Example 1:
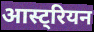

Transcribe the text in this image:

आस्ट्रियन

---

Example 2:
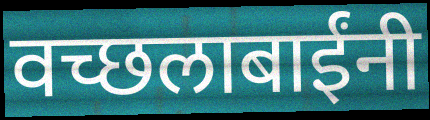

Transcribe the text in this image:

वच्छलाबाईंनी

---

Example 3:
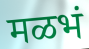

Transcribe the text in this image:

मळभं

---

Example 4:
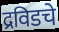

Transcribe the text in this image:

द्रविडचे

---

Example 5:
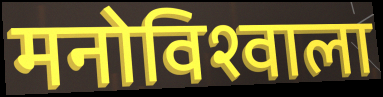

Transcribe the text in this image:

मनोविश्वाला